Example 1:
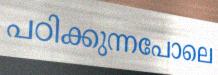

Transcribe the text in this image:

പഠിക്കുന്നപോലെ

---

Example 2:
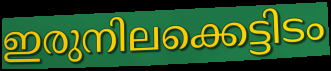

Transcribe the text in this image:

ഇരുനിലക്കെട്ടിടം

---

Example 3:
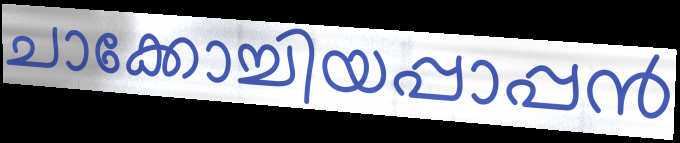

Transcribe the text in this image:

ചാക്കോച്ചിയപ്പാപ്പൻ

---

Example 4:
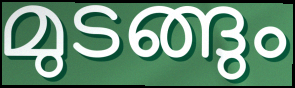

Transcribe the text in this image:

മുടങ്ങും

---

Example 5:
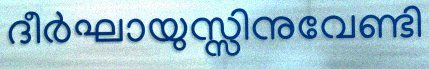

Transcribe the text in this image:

ദീർഘായുസ്സിനുവേണ്ടി